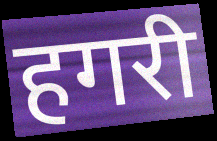
हगरी